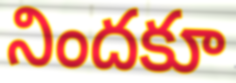
నిందకూ